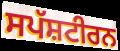
ਸਪੱਸ਼ਟੀਰਨ